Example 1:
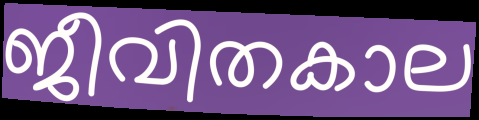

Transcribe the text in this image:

ജീവിതകാല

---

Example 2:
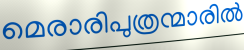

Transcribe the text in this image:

മെരാരിപുത്രന്മാരിൽ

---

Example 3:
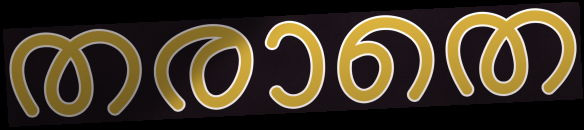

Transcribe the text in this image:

തരാതെ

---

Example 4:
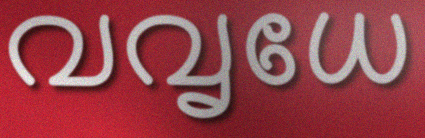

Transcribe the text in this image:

വവൃധേ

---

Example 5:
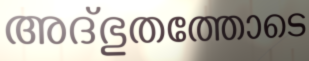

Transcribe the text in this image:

അദ്ഭുതത്തോടെ